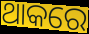
ଥାକରେ